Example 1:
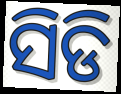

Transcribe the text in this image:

ସିଡି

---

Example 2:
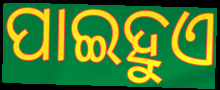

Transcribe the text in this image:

ପାଇହୁଏ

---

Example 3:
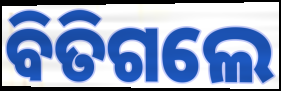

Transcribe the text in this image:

ବିତିଗଲେ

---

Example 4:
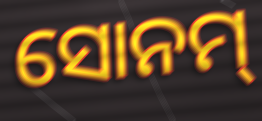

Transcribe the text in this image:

ସୋନମ୍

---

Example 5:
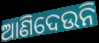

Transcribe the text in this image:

ଆଣିଦେଉନି